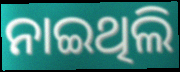
ନାଇଥିଲି